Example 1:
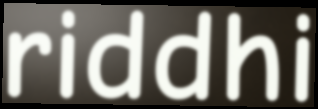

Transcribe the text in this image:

riddhi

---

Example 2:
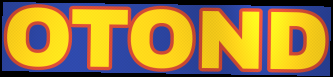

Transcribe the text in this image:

OTOND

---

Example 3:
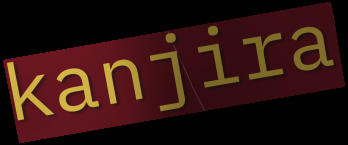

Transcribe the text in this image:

kanjira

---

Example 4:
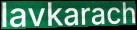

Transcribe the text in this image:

lavkarach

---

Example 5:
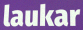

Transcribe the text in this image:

laukar